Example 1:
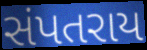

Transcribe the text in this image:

સંપતરાય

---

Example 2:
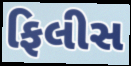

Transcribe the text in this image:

ફિલીસ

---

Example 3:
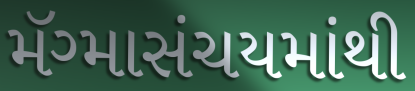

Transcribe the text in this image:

મૅગ્માસંચયમાંથી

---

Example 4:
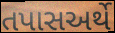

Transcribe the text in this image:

તપાસઅર્થે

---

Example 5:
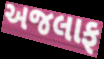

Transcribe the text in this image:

અજલાફ